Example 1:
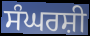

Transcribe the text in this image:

ਸੰਘਰਸ਼ੀ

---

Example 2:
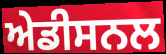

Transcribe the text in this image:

ਅੇਡੀਸਨਲ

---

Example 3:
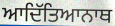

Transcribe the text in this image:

ਆਦਿੱਤਿਆਨਾਥ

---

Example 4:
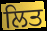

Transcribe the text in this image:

ਲਿਤ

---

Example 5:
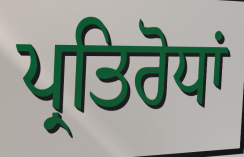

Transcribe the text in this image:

ਪ੍ਰਤਿਰੋਧਾਂ